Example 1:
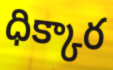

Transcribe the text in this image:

ధిక్కార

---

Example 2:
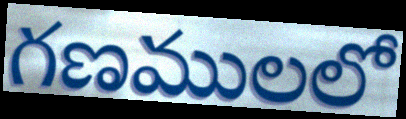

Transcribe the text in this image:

గణములలో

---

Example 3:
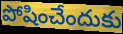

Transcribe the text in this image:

పోషించేందుకు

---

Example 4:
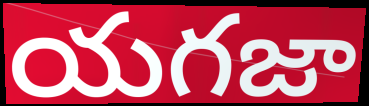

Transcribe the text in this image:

యగజా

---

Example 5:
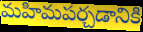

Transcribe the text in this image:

మహిమపర్చడానికి